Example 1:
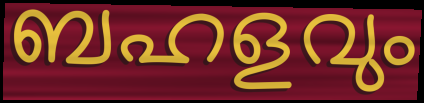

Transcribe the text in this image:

ബഹളവും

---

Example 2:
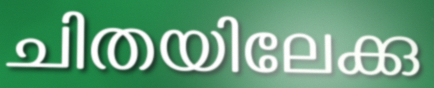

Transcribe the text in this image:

ചിതയിലേക്കു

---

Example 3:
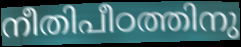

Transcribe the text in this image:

നീതിപീഠത്തിനു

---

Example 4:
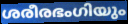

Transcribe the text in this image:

ശരീരഭംഗിയും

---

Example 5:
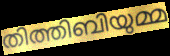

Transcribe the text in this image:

തിത്തിബിയുമ്മ